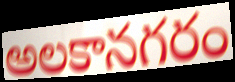
అలకానగరం